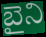
బైని